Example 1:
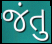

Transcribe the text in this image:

જંતુ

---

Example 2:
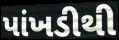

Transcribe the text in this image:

પાંખડીથી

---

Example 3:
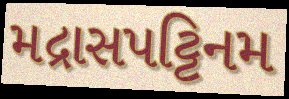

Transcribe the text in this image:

મદ્રાસપટ્ટિનમ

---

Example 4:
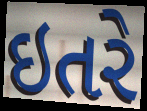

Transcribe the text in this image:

ઇતરે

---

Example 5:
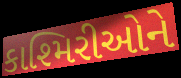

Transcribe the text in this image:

કાશ્મિરીઓને